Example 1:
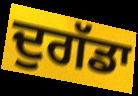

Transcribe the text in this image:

ਦੁਗੱਡਾ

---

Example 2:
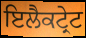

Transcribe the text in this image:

ਇਲੈਕਟ੍ਰੇਟ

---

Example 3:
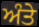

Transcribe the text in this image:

ਅੰਤੇ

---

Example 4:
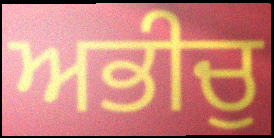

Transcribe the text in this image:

ਅਭੀਚੁ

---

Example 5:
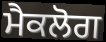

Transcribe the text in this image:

ਮੈਕਲੋਗ